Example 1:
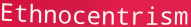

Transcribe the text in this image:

Ethnocentrism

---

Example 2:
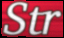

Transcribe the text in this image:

Str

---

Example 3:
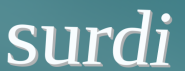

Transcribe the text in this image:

surdi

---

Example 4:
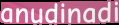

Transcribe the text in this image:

anudinadi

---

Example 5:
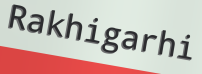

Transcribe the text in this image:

Rakhigarhi